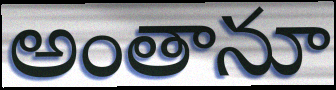
అంతానూ